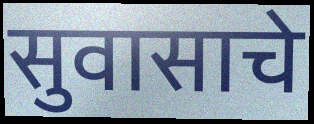
सुवासाचे